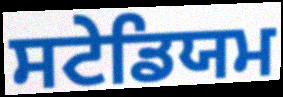
ਸਟੇਡਿਯਮ